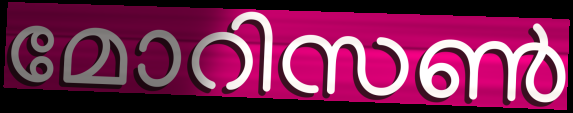
മോറിസൺ